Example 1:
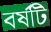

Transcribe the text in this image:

বর্ষটি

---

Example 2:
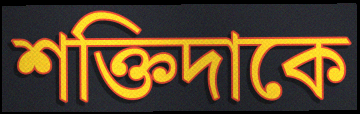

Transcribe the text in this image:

শক্তিদাকে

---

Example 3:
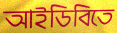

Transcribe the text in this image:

আইডিবিতে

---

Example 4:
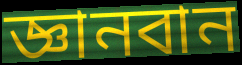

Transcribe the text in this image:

জ্ঞানবান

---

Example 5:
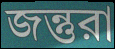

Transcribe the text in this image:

জন্তুরা